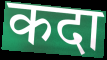
कदा